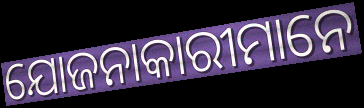
ଯୋଜନାକାରୀମାନେ